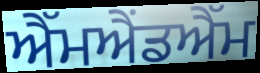
ਐੱਮਐਂਡਐੱਮ